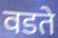
वडते